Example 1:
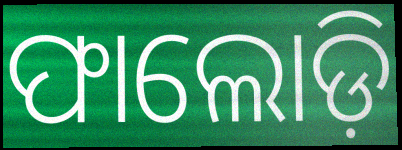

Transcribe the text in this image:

ଫାଲୋଡ଼ି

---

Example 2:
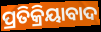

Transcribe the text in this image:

ପ୍ରତିକ୍ରିୟାବାଦ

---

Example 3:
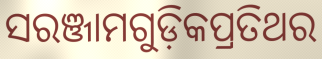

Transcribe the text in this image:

ସରଞ୍ଜାମଗୁଡ଼ିକପ୍ରତିଥର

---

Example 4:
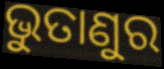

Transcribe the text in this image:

ଭୁତାଣୁର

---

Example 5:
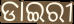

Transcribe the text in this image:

ଡାଇରୀ